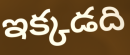
ఇక్కడది